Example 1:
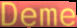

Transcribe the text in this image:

Deme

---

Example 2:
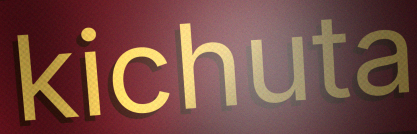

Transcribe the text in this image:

kichuta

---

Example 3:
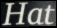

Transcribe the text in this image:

Hat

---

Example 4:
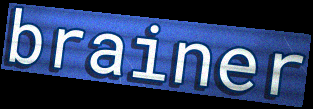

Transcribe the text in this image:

brainer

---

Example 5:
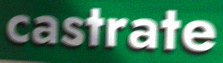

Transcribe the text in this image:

castrate